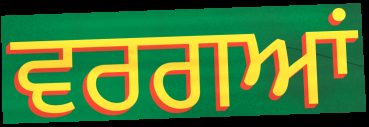
ਵਰਗਆਂ